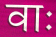
वाः